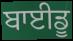
ਬਾਈਡੂ